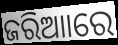
ଜରିଆାରେ